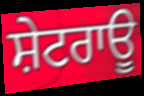
ਸ਼ੇਟਰਾਊ